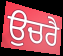
ਉਚਰੈ